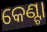
କେଣ୍ଟା